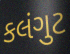
કલંગુટ